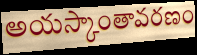
అయస్కాంతావరణం